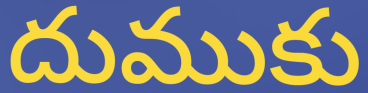
దుముకు